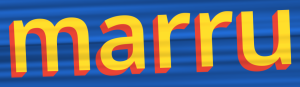
marru